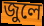
জুলে